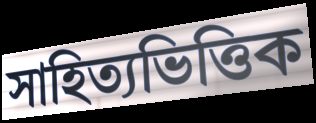
সাহিত্যভিত্তিক